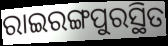
ରାଇରଙ୍ଗପୁରସ୍ଥିତ